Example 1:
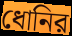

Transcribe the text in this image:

ধোনির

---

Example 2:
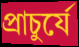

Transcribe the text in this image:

প্রাচুর্যে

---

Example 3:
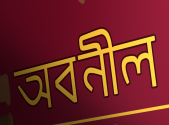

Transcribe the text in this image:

অবনীল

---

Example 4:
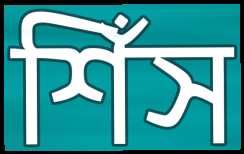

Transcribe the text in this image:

শিঁস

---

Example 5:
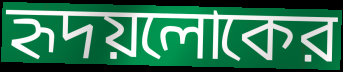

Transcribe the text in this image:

হৃদয়লোকের